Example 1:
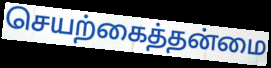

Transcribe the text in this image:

செயற்கைத்தன்மை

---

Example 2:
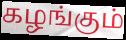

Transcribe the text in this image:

கழங்கும்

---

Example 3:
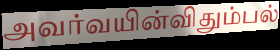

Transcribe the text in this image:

அவர்வயின்விதும்பல்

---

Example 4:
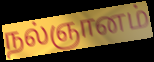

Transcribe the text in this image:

நல்ஞானம்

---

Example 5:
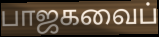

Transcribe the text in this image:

பாஜகவைப்